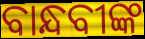
ବାନ୍ଧବୀଙ୍କ